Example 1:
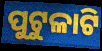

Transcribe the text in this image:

ପୁଟୁଳାଟି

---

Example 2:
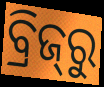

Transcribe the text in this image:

ବ୍ରିଜ୍‌ରୁ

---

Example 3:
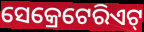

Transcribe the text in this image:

ସେକ୍ରେଟେରିଏଟ୍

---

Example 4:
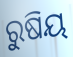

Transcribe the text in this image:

ରୁଷିୟ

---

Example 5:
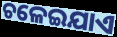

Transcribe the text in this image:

ଚଳେଇଯାଏ